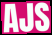
AJS